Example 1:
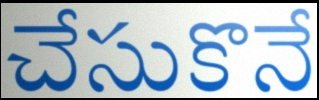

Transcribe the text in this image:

చేసుకొనే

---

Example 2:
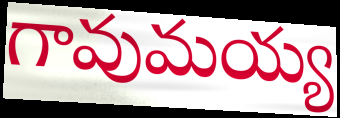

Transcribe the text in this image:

గావుమయ్య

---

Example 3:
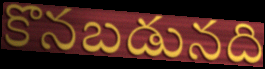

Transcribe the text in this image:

కొనబడునది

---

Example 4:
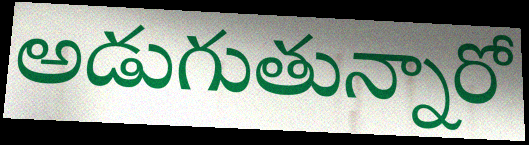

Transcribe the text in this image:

అడుగుతున్నారో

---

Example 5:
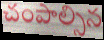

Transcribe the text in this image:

చంపాల్సిన